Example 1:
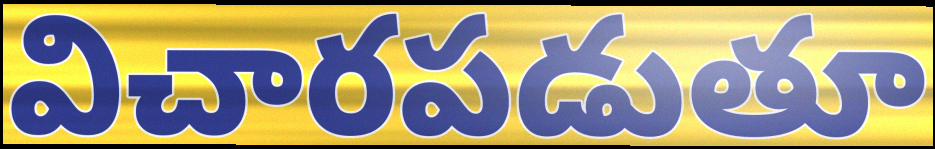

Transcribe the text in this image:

విచారపడుతూ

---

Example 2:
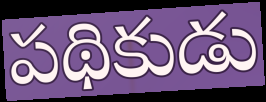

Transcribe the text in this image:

పథికుడు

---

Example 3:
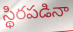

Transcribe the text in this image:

స్థిరపడినా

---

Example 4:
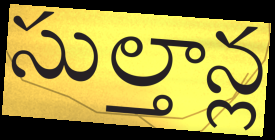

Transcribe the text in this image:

సుల్తాన్ల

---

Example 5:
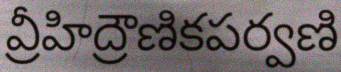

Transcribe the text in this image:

వ్రీహిద్రౌణికపర్వణి